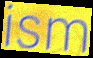
ism